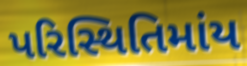
પરિસ્થિતિમાંય